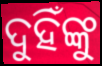
ଦୁହିଁଙ୍କୁ